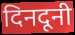
दिनदूनी